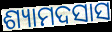
ଶ୍ୟାମଦସାସ